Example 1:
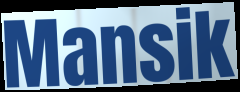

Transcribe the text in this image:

Mansik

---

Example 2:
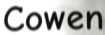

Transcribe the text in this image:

Cowen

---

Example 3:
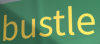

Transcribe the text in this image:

bustle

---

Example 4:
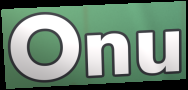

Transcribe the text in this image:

Onu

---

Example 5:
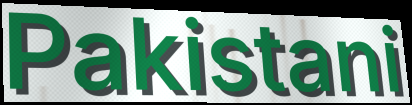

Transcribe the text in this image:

Pakistani